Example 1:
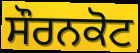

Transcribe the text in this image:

ਸੌਰਨਕੋਟ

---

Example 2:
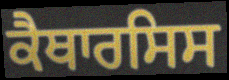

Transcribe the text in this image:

ਕੈਥਾਰਸਿਸ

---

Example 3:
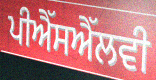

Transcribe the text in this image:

ਪੀਐੱਸਐੱਲਵੀ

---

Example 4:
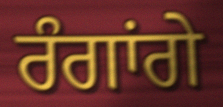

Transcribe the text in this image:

ਰੰਗਾਂਗੇ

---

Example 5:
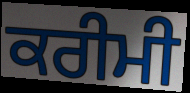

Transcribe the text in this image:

ਕਰੀਮੀ